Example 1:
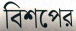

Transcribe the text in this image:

বিশপের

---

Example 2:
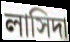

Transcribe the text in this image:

লাসিদা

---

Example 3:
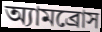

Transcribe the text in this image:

অ্যামব্রোস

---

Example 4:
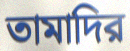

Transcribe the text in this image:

তামাদির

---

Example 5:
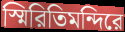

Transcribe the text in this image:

স্মিরিতিমন্দিরে